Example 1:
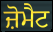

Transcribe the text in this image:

ਜ਼ੋਮੈਟ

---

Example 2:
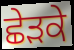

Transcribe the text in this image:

ਛੇੜਕੇ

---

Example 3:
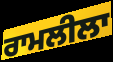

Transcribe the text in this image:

ਰਾਮਲੀਲਾ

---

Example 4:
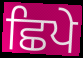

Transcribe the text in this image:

ਛਿਪੇ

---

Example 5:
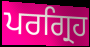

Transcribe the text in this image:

ਪਰਗ੍ਰਿਹ